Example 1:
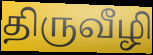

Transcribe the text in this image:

திருவீழி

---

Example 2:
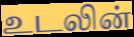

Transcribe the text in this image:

உடலின்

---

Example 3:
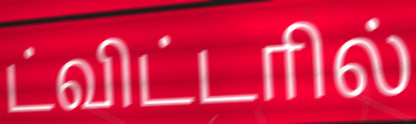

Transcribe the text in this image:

ட்விட்டரில்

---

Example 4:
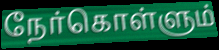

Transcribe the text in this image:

நேர்கொள்ளும்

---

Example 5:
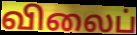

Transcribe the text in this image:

விலைப்